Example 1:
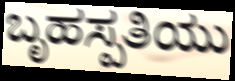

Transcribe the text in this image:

ಬೃಹಸ್ಪತಿಯು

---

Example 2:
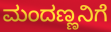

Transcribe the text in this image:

ಮಂದಣ್ಣನಿಗೆ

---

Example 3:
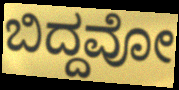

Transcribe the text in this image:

ಬಿದ್ದವೋ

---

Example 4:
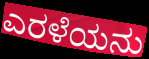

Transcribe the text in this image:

ಎರಳೆಯನು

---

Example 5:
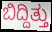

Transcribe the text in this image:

ಬಿದ್ದಿತ್ತು